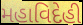
મહાવિદેહી